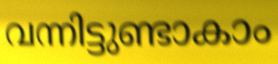
വന്നിട്ടുണ്ടാകാം